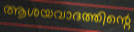
ആശയവാദത്തിന്റെ